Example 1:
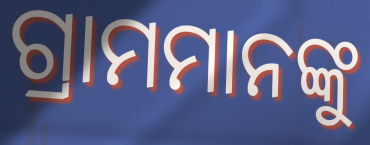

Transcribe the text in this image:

ଗ୍ରାମମାନଙ୍କୁ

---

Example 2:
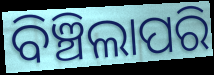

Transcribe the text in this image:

ବିଞ୍ଚିଲାପରି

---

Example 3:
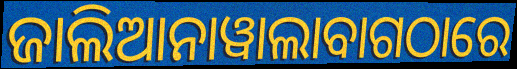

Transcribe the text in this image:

ଜାଲିଆନାୱାଲାବାଗଠାରେ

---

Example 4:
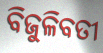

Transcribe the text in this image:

ବିଜୁଳିବତୀ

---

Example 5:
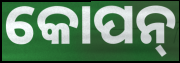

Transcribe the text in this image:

କୋପନ୍